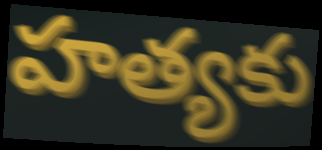
హత్యకు